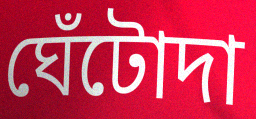
ঘেঁটোদা